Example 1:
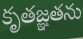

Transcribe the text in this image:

కృతజ్ఞతను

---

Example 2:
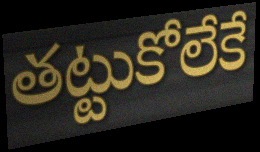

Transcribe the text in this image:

తట్టుకోలేకే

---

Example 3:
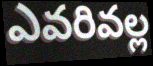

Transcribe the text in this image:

ఎవరివల్ల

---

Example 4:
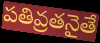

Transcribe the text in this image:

పతివ్రతనైతే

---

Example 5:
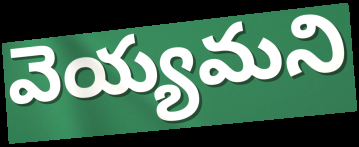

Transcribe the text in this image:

వెయ్యమని